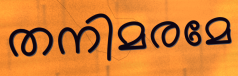
തനിമരമേ